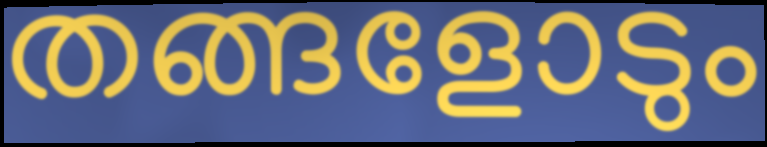
തങ്ങളോടും